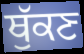
ਥੁੱਕਣ